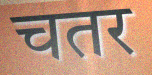
चतर